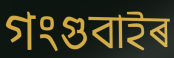
গংগুবাইৰ